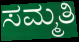
ಸಮ್ಮತಿ